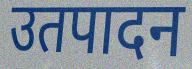
उतपादन